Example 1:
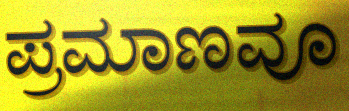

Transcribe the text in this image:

ಪ್ರಮಾಣವೂ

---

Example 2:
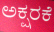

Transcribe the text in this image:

ಅಕ್ಷರಕೆ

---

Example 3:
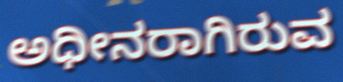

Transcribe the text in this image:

ಅಧೀನರಾಗಿರುವ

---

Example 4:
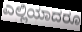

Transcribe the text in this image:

ಎಲ್ಲಿಯಾದರೂ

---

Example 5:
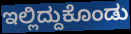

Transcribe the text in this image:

ಇಲ್ಲಿದ್ದುಕೊಂಡು